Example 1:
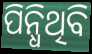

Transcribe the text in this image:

ପିନ୍ଧିଥିବି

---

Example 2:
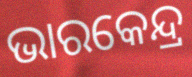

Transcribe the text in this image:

ଭାରକେନ୍ଦ୍ର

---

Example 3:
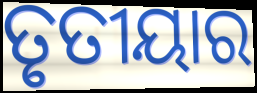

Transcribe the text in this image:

ତୃତୀୟାର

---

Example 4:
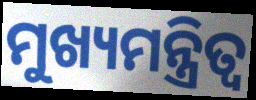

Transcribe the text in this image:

ମୁଖ୍ୟମନ୍ତ୍ରିତ୍ୱ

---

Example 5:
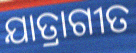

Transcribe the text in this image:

ଯାତ୍ରାଗୀତ